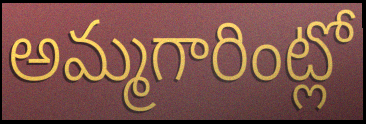
అమ్మగారింట్లో